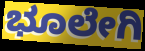
ಭೂಲೇಗಿ